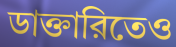
ডাক্তারিতেও